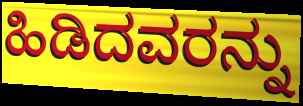
ಹಿಡಿದವರನ್ನು